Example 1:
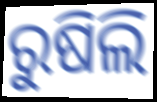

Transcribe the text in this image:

ରୁଷିଲି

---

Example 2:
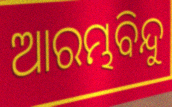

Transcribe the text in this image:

ଆରମ୍ଭବିନ୍ଦୁ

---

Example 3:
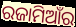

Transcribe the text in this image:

ରଜାମିଆଁର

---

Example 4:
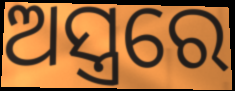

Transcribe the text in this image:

ଅସ୍ତ୍ରରେ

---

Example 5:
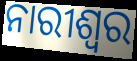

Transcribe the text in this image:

ନାରୀଶ୍ବର